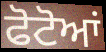
ਫੋਟੋਆਂ